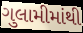
ગુલામીમાંથી